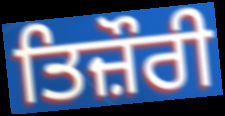
ਤਿਜ਼ੌਰੀ